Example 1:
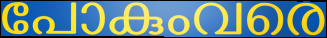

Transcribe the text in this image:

പോകുംവരെ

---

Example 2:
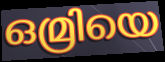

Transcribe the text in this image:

ഒമ്രിയെ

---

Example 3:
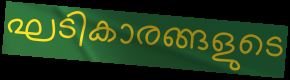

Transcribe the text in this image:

ഘടികാരങ്ങളുടെ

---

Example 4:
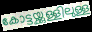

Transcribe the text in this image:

കോട്ടയ്ക്കുള്ളിലുള്ള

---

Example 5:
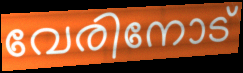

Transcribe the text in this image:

വേരിനോട്